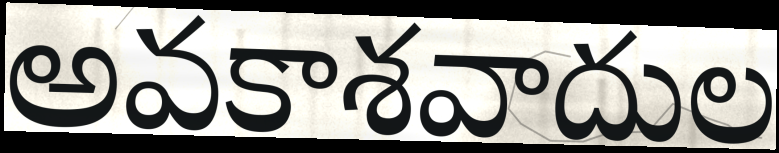
అవకాశవాదుల